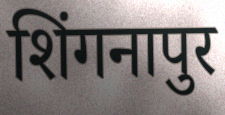
शिंगनापुर